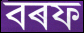
বৰফ